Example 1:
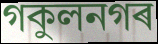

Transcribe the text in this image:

গকুলনগৰ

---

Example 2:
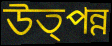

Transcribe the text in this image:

উত্পন্ন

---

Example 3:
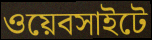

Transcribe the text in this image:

ওয়েবসাইটে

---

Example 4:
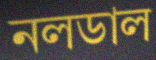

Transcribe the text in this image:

নলডাল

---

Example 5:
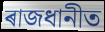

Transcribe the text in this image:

ৰাজধানীত